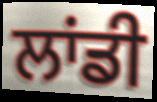
ਲਾਂਡੀ